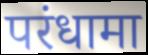
परंधामा